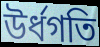
উর্ধগতি